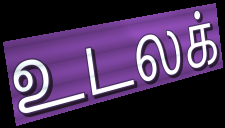
உடலக்